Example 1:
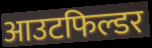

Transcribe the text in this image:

आउटफिल्डर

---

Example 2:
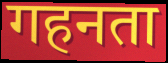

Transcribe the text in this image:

गहनता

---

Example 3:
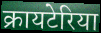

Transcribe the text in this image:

क्रायटेरिया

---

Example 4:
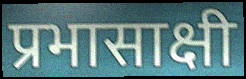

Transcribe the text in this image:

प्रभासाक्षी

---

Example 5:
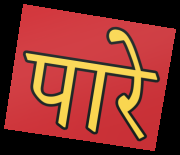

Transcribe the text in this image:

पारे